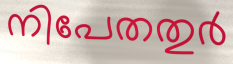
നിപേതതുർ